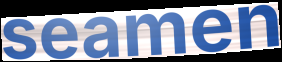
seamen